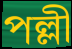
পল্লী